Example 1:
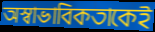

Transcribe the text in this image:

অস্বাভাবিকতাকেই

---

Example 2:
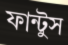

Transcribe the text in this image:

ফান্টুস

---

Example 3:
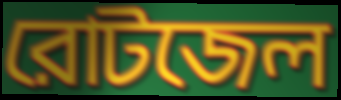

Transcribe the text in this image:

রোটজেল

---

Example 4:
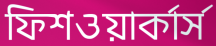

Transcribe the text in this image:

ফিশওয়ার্কার্স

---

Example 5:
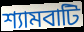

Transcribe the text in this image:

শ্যামবাটি